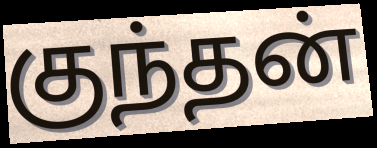
குந்தன்